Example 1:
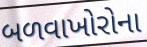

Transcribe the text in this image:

બળવાખોરોના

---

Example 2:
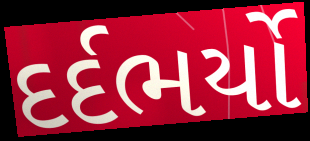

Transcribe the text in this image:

દર્દભર્યો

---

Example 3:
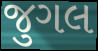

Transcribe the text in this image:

જુગલ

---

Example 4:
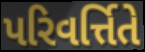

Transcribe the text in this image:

પરિવર્ત્તિતે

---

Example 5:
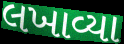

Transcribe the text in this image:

લખાવ્યા